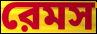
রেমস